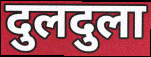
दुलदुला